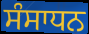
ਸੰਸਾਧਨ